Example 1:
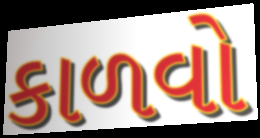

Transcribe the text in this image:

કાળવો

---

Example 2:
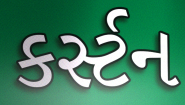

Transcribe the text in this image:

કર્સ્ટન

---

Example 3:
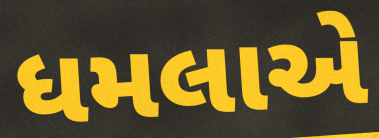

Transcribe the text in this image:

ધમલાએ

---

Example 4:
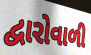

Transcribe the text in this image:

દ્વારોવાળી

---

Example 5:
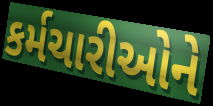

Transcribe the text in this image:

કર્મચારીઓને